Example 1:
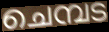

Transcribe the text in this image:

ചെമ്പട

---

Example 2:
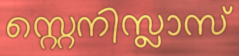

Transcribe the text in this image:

സ്റ്റെനിസ്ലാസ്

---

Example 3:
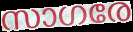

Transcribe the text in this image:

സാഗരേ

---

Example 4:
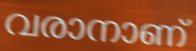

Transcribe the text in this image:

വരാനാണ്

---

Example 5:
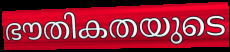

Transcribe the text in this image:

ഭൗതികതയുടെ